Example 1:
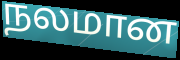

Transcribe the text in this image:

நலமான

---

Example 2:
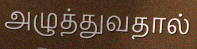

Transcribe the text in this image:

அழுத்துவதால்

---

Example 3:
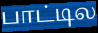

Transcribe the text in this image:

பாட்டில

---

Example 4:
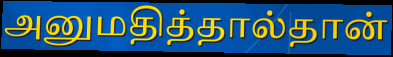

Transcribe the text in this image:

அனுமதித்தால்தான்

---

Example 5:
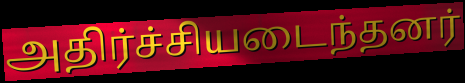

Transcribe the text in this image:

அதிர்ச்சியடைந்தனர்